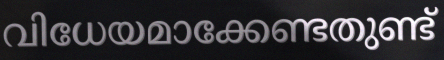
വിധേയമാക്കേണ്ടതുണ്ട്